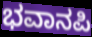
ಭವಾನಪಿ